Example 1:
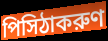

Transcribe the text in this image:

পিসিঠাকরুণ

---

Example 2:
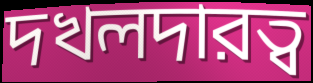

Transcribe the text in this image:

দখলদারত্ব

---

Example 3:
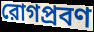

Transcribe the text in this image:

রোগপ্রবণ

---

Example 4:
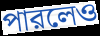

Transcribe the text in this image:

পারলেও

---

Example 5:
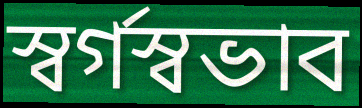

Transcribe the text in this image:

স্বর্গস্বভাব